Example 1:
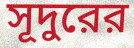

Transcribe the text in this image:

সূদুরের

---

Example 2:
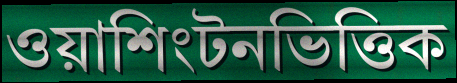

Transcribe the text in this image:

ওয়াশিংটনভিত্তিক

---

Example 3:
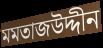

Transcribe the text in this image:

মমতাজউদ্দীন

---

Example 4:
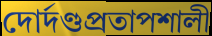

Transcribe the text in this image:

দোর্দণ্ডপ্রতাপশালী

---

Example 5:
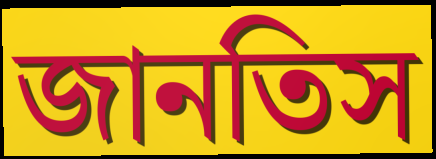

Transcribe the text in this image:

জানতিস